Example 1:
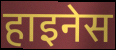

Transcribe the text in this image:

हाइनेस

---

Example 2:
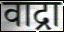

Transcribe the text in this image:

वाद्रा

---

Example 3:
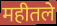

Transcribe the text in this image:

महीतले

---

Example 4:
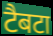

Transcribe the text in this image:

टैबटा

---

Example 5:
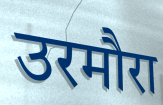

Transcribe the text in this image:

उरमौरा